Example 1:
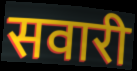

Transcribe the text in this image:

सवारी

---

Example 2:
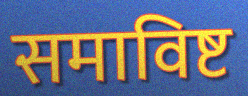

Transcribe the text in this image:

समाविष्ट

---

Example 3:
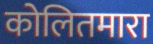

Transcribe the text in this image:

कोलितमारा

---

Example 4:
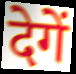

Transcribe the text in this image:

देगें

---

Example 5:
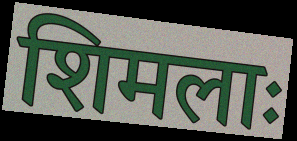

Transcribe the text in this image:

शिमलाः